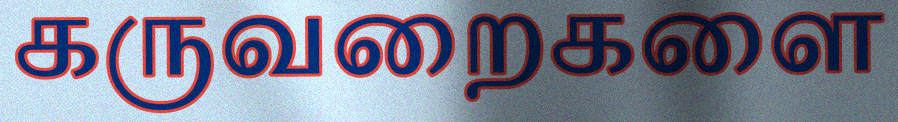
கருவறைகளை